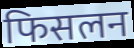
फिसलन